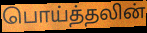
பொய்த்தலின்